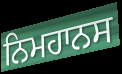
ਨਿਮਹਾਨਸ